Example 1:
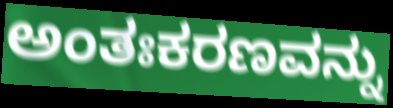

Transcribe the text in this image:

ಅಂತಃಕರಣವನ್ನು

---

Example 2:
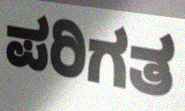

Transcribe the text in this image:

ಪರಿಗತ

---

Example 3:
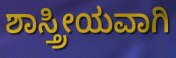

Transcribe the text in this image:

ಶಾಸ್ತ್ರೀಯವಾಗಿ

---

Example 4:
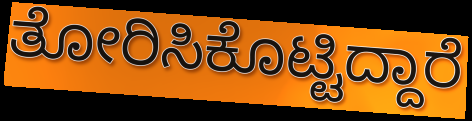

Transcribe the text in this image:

ತೋರಿಸಿಕೊಟ್ಟಿದ್ದಾರೆ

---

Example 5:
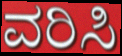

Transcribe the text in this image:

ವರಿಸಿ